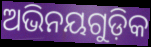
ଅଭିନୟଗୁଡ଼ିକ